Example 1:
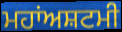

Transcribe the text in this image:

ਮਹਾਂਅਸ਼ਟਮੀ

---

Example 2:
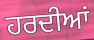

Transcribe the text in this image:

ਹਰਦੀਆਂ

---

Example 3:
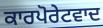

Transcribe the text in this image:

ਕਾਰਪੋਰੇਟਵਾਦ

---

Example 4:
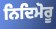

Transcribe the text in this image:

ਨਿਦਿਮੋਰੂ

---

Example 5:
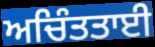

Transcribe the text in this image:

ਅਚਿੰਤਤਾਈ